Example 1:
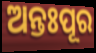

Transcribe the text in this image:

ଅନ୍ତଃପୂର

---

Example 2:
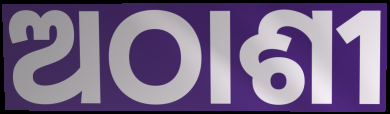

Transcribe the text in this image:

ଅଠାଶୀ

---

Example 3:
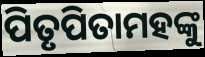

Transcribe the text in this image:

ପିତୃପିତାମହଙ୍କୁ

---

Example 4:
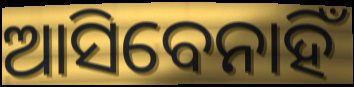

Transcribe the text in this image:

ଆସିବେନାହିଁ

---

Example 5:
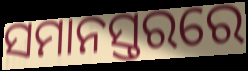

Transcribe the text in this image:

ସମାନସ୍ତରରେ